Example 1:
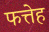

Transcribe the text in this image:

फत्तेह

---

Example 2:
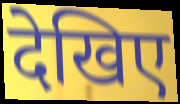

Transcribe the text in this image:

देखिए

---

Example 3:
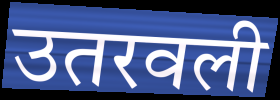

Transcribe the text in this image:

उतरवली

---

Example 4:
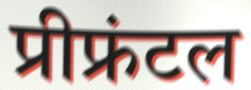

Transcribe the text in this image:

प्रीफ्रंटल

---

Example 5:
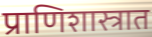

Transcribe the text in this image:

प्राणिशास्त्रात